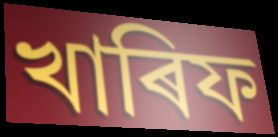
খাৰিফ